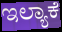
ಇಲ್ಯಾಕೆ